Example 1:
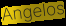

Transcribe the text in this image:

Angelos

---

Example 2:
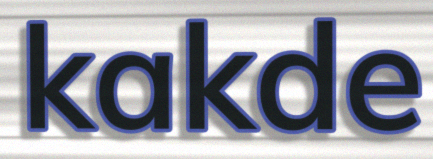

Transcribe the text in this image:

kakde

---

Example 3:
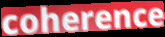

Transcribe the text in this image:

coherence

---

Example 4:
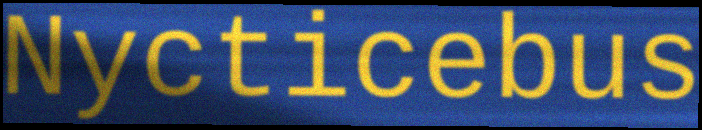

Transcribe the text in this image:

Nycticebus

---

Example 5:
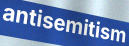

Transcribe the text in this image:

antisemitism